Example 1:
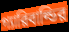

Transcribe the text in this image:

গ্যারিবাল্ডির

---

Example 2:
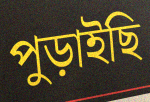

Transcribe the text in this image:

পুড়াইছি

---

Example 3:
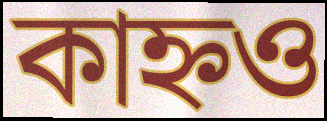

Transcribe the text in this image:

কাহ্নও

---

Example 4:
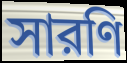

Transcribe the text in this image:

সারণি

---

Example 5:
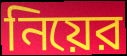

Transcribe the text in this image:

নিয়ের